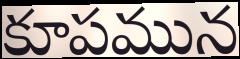
కూపమున